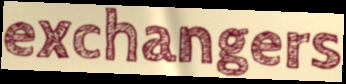
exchangers